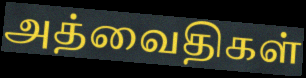
அத்வைதிகள்